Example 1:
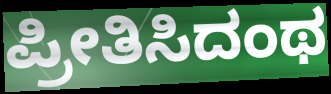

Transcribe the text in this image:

ಪ್ರೀತಿಸಿದಂಥ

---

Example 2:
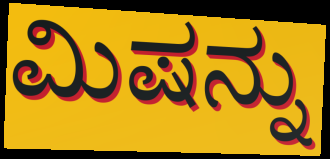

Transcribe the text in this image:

ಮಿಷನ್ನು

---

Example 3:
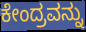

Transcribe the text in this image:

ಕೇಂದ್ರವನ್ನು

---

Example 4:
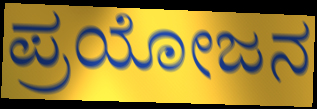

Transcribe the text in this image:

ಪ್ರಯೋಜನ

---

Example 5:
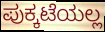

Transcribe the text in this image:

ಪುಕ್ಕಟೆಯಲ್ಲ